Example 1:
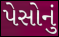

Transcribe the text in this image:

પેસોનું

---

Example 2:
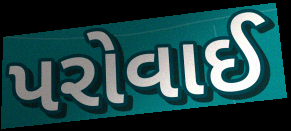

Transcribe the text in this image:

પરોવાઈ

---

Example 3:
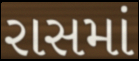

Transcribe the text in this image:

રાસમાં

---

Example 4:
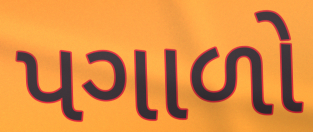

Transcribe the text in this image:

પગાળો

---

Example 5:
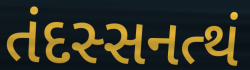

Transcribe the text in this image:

તંદસ્સનત્થં